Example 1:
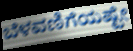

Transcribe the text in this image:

ಬೆಳವಣಿಗೆಯಷ್ಟೇ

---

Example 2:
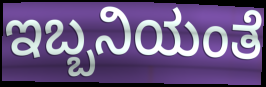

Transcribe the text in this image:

ಇಬ್ಬನಿಯಂತೆ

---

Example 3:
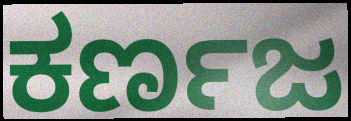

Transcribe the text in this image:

ಕರ್ಣಜ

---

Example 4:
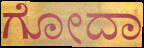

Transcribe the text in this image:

ಗೋದಾ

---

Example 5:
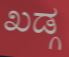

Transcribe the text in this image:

ಖಡ್ಗ